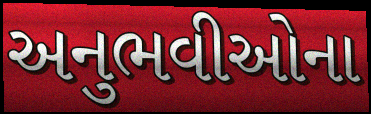
અનુભવીઓના